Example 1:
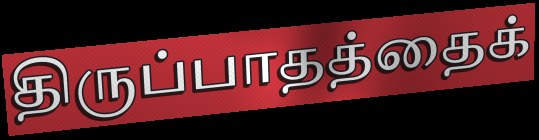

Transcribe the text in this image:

திருப்பாதத்தைக்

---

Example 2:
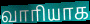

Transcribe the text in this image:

வாரியாக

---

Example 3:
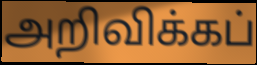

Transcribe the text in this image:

அறிவிக்கப்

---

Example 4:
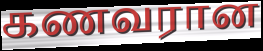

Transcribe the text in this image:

கணவரான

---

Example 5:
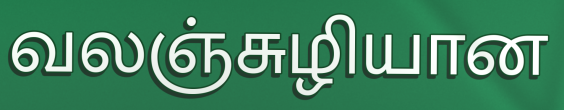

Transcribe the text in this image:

வலஞ்சுழியான